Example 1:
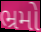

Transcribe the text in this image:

ભ્રમો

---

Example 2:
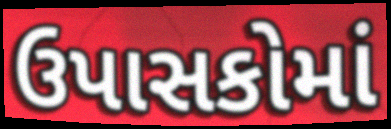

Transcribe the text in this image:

ઉપાસકોમાં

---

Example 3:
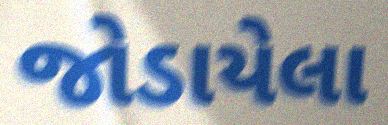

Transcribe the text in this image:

જોડાયેલા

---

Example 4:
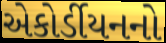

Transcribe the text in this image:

એકોર્ડીયનનો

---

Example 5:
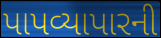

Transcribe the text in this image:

પાપવ્યાપારની